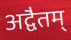
अद्वैतम्